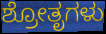
ಶ್ರೋತೃಗಳು